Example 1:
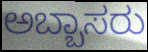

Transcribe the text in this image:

ಅಬ್ಬಾಸರು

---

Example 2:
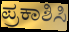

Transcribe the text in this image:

ಪ್ರಕಾಶಿಸಿ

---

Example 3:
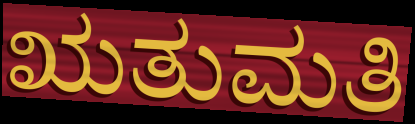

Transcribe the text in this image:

ಋತುಮತಿ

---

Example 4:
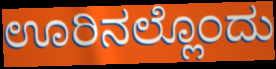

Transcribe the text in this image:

ಊರಿನಲ್ಲೊಂದು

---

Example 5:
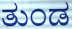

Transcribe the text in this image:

ತುಂಡ